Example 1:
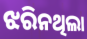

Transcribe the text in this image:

ଝରିନଥିଲା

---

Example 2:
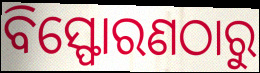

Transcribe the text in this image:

ବିସ୍ଫୋରଣଠାରୁ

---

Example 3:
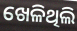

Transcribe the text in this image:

ଖେଳିଥିଲି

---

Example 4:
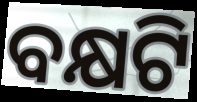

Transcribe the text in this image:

ବକ୍ଷଟି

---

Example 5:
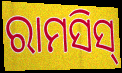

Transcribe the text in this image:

ରାମସିସ୍